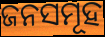
ଜନସମୂହ